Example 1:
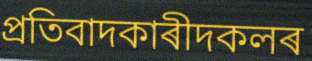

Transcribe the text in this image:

প্ৰতিবাদকাৰীদকলৰ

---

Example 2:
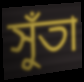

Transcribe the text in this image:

সুঁতা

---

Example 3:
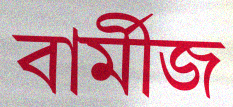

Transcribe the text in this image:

বাৰ্মীজ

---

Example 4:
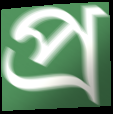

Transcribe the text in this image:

প্ৰ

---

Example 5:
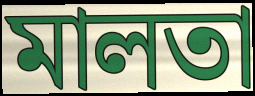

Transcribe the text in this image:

মালতা